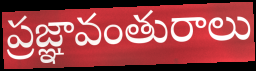
ప్రజ్ఞావంతురాలు